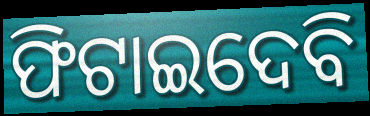
ଫିଟାଇଦେବି